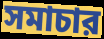
সমাচার